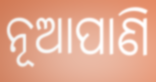
ନୂଆପାଣି